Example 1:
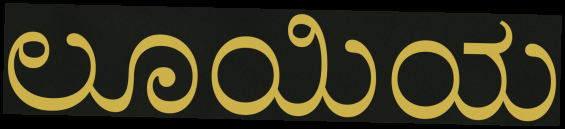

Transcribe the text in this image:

ಲೂಯಿಯ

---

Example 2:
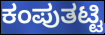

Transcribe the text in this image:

ಕಂಪುತಟ್ಟಿ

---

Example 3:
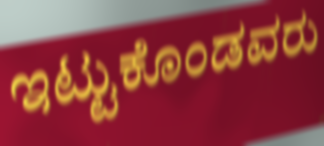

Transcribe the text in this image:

ಇಟ್ಟುಕೊಂಡವರು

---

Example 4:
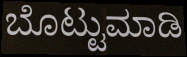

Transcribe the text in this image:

ಬೊಟ್ಟುಮಾಡಿ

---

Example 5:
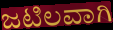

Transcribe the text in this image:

ಜಟಿಲವಾಗಿ